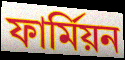
ফাৰ্মিয়ন